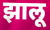
झालू